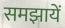
समझायें